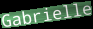
Gabrielle